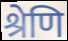
श्रेणि